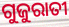
ଗୁଜୁରାତୀ